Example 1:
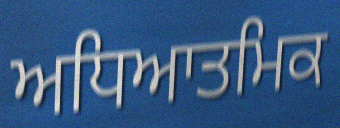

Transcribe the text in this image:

ਅਧਿਆਤਮਿਕ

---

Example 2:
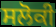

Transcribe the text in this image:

ਸਲੋਕੀ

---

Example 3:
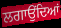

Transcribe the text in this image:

ਲਗਾਉਂਦਿਆਂ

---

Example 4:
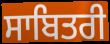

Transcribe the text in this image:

ਸਾਬਿਤਰੀ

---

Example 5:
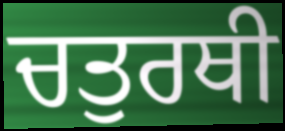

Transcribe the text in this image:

ਚਤੁਰਥੀ